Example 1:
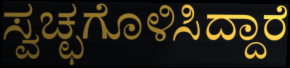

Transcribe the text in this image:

ಸ್ವಚ್ಛಗೊಳಿಸಿದ್ದಾರೆ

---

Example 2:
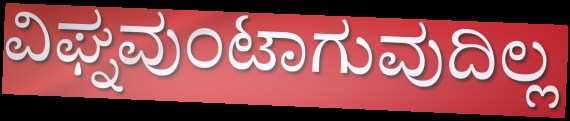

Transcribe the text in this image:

ವಿಘ್ನವುಂಟಾಗುವುದಿಲ್ಲ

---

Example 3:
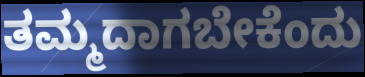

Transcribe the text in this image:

ತಮ್ಮದಾಗಬೇಕೆಂದು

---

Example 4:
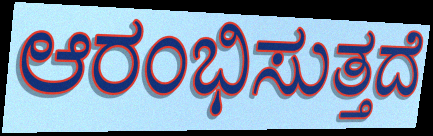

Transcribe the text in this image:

ಆರಂಭಿಸುತ್ತದೆ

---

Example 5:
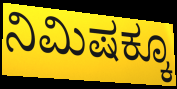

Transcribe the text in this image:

ನಿಮಿಷಕ್ಕೂ